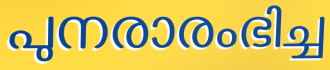
പുനരാരംഭിച്ച